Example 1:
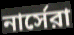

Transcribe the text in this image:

নার্সেরা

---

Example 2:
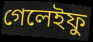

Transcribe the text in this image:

গেলেইফু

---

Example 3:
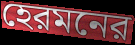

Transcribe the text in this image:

হেরমনের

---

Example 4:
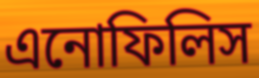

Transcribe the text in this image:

এনোফিলিস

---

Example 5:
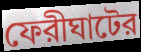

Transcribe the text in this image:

ফেরীঘাটের